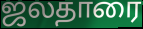
ஜலதாரை